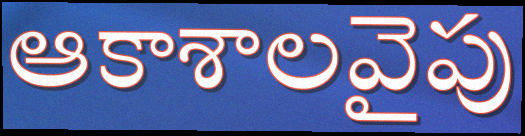
ఆకాశాలవైపు